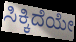
ಸಿಕ್ಕಿದೆಯೇ